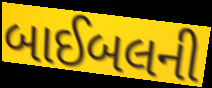
બાઈબલની